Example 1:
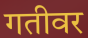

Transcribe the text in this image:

गतीवर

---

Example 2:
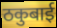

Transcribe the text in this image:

ठकुबाई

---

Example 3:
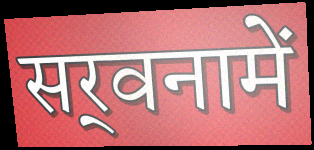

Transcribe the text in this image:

सर्वनामें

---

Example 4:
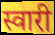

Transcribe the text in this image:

स्वारी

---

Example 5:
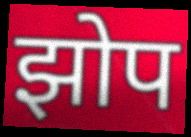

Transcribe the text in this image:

झोप